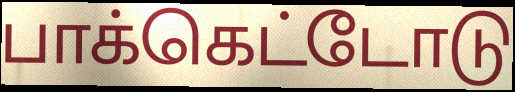
பாக்கெட்டோடு